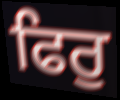
ਫਿਰੁ